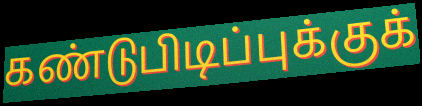
கண்டுபிடிப்புக்குக்